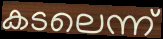
കടലെന്ന്